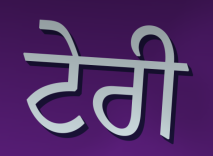
ਟੇਰੀ